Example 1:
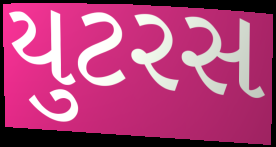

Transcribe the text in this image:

યુટરસ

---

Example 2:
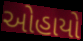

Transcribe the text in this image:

ઓહાયો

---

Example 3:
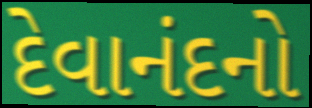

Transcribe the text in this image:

દેવાનંદનો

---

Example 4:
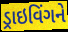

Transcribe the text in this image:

ડ્રાઇવિંગને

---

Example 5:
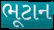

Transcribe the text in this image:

ભૂટાન